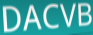
DACVB